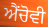
ਐਂਚੋਵੀ